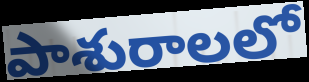
పాశురాలలో